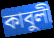
কাবুলী